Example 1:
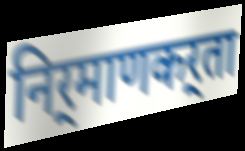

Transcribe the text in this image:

निर्माणकर्ता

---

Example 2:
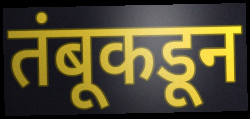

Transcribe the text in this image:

तंबूकडून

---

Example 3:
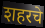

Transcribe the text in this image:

शहरचे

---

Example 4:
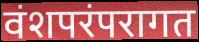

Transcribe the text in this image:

वंशपरंपरागत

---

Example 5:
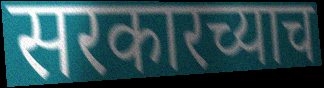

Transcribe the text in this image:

सरकारच्याच